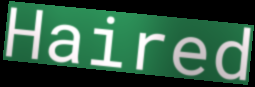
Haired